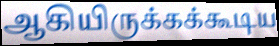
ஆகியிருக்கக்கூடிய